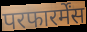
परफारर्मेंस